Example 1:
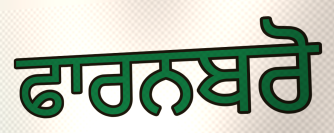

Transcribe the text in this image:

ਫਾਰਨਬਰੋ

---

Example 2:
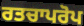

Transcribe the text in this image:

ਰਤਚਾਪਰੋਪ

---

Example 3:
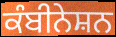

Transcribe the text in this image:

ਕੰਬੀਨੇਸ਼ਨ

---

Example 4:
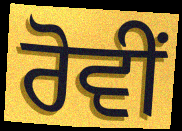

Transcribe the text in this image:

ਰੋਵੀਂ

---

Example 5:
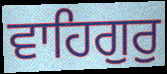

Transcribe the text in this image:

ਵਾਹਿਗੁਰੁ